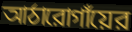
আঠারোগাঁয়ের